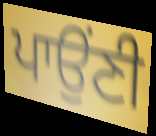
ਪਾਉਂਣੀ